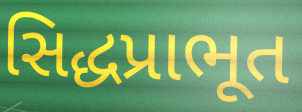
સિદ્ધપ્રાભૂત